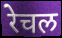
रेचल